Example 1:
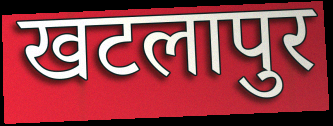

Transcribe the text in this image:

खटलापुर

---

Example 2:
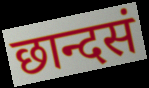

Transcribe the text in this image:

छान्दसं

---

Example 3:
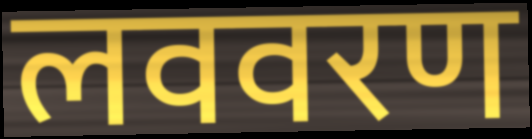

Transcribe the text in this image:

लववरण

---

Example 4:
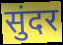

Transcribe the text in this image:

सुंदर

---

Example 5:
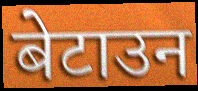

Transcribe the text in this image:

बेटाउन